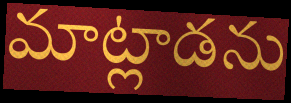
మాట్లాడను